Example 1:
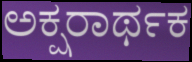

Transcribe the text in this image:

ಅಕ್ಷರಾರ್ಥಕ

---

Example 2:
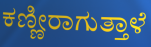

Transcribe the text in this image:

ಕಣ್ಣೀರಾಗುತ್ತಾಳೆ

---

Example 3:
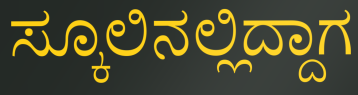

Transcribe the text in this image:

ಸ್ಕೂಲಿನಲ್ಲಿದ್ದಾಗ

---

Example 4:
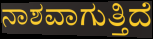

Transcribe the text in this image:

ನಾಶವಾಗುತ್ತಿದೆ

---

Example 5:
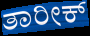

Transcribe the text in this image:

ತಾರೀಕ್